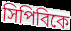
সিপিবিকে